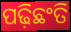
ପଢ଼ିଛଂତି